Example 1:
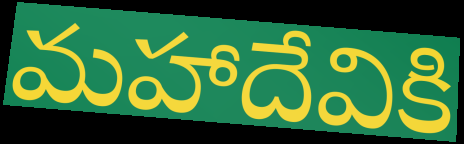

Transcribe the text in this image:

మహాదేవికి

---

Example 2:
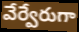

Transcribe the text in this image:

వేర్వేరుగా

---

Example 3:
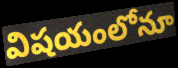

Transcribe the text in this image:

విషయంలోనూ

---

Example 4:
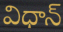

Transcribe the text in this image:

విధాన్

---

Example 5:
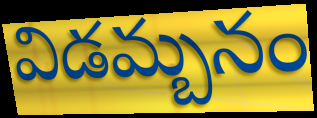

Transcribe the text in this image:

విడమ్బనం